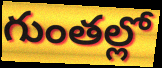
గుంతల్లో